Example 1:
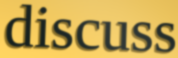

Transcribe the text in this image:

discuss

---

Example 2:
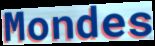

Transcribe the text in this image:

Mondes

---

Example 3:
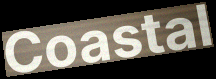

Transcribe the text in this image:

Coastal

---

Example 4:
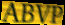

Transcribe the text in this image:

ABVP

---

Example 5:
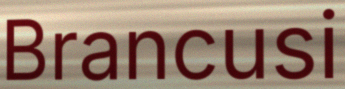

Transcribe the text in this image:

Brancusi